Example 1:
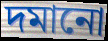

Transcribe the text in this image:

দমানো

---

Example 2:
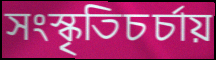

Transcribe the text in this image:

সংস্কৃতিচর্চায়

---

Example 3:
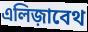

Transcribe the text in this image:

এলিজ়াবেথ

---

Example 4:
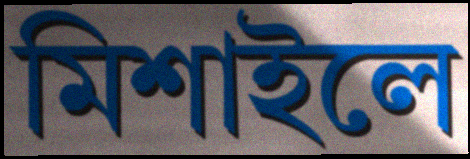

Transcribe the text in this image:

মিশাইলে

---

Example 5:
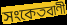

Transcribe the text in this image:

সংকেতবাণী